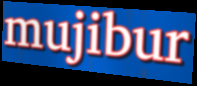
mujibur